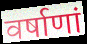
वर्षाणां